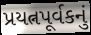
પ્રયત્નપૂર્વકનું